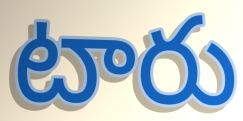
టారు